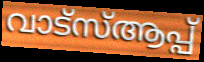
വാട്സ്ആപ്പ്